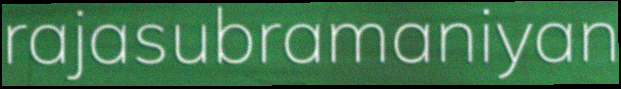
rajasubramaniyan